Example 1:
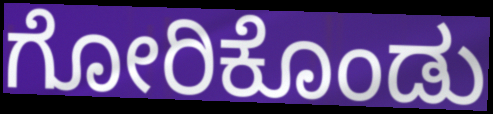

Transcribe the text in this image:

ಗೋರಿಕೊಂಡು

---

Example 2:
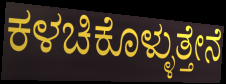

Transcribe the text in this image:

ಕಳಚಿಕೊಳ್ಳುತ್ತೇನೆ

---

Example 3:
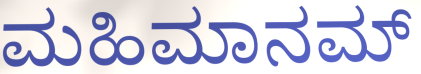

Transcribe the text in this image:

ಮಹಿಮಾನಮ್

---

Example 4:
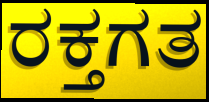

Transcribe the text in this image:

ರಕ್ತಗತ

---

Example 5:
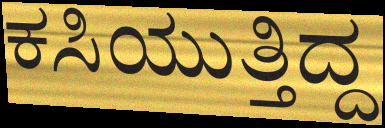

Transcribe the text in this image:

ಕಸಿಯುತ್ತಿದ್ದ